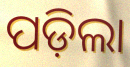
ପଡ଼ିଲା